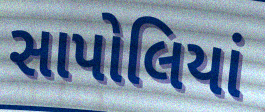
સાપોલિયાં